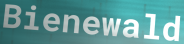
Bienewald